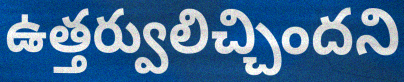
ఉత్తర్వులిచ్చిందని